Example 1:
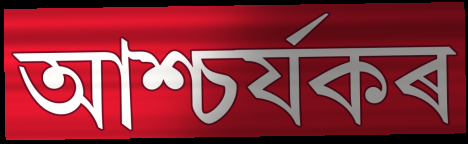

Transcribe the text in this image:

আশ্চৰ্যকৰ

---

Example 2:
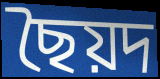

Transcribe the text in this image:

ছৈয়দ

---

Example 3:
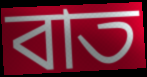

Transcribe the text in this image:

বাত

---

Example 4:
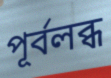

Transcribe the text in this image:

পূৰ্বলব্ধ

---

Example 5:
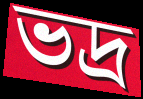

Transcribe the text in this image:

ভদ্ৰ